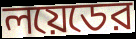
লয়েডের